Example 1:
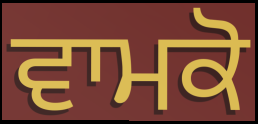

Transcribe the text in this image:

ਵਾਮਕੋ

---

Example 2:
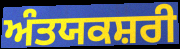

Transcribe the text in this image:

ਅੰਤਯਕਸ਼ਰੀ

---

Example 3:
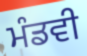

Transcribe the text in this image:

ਮੰਡਵੀ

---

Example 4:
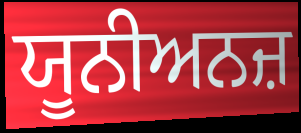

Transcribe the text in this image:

ਯੂਨੀਅਨਜ਼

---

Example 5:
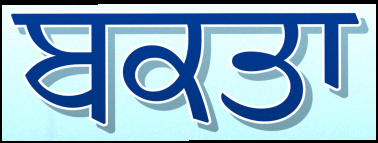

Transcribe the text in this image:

ਬਕਤਾ